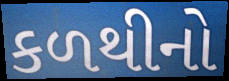
કળથીનો